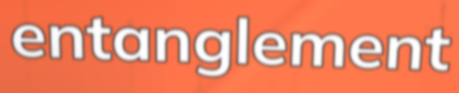
entanglement